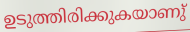
ഉടുത്തിരിക്കുകയാണു്